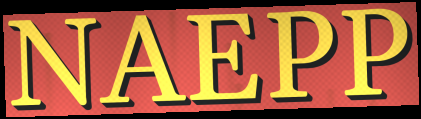
NAEPP